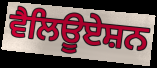
ਵੈਲਿਊਏਸ਼ਨ